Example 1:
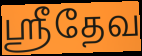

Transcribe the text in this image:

ஸ்ரீதேவ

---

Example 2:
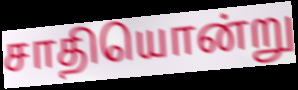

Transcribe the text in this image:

சாதியொன்று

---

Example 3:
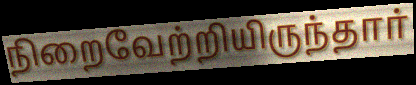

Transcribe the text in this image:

நிறைவேற்றியிருந்தார்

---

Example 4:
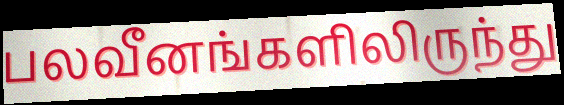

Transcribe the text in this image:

பலவீனங்களிலிருந்து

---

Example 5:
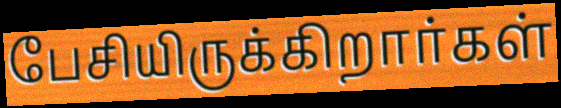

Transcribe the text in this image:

பேசியிருக்கிறார்கள்